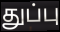
துப்பு